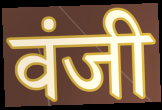
वंजी